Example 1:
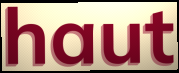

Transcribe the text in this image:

haut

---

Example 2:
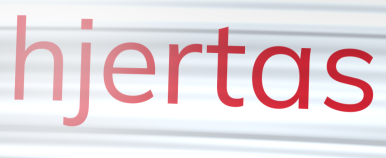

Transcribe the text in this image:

hjertas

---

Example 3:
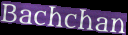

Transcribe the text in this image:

Bachchan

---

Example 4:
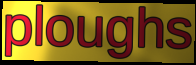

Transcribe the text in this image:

ploughs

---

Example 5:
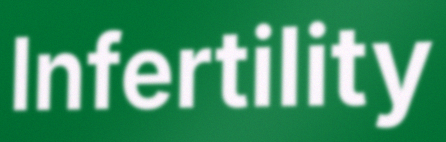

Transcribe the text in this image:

Infertility